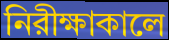
নিরীক্ষাকালে